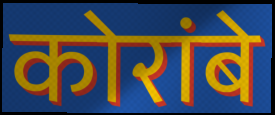
कोरांबे